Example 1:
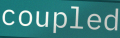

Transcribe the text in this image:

coupled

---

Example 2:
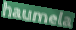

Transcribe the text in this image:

haumela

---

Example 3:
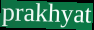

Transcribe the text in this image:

prakhyat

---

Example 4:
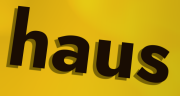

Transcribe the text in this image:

haus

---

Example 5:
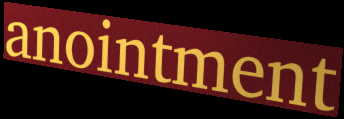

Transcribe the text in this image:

anointment